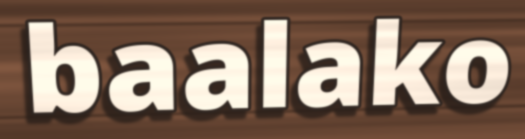
baalako